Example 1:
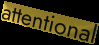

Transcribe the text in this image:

attentional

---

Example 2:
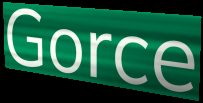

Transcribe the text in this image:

Gorce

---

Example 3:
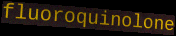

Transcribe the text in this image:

fluoroquinolone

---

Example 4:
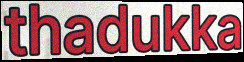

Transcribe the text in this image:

thadukka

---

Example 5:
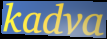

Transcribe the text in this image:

kadva